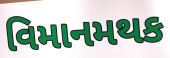
વિમાનમથક